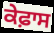
ਕੇਫ਼ਾਸ